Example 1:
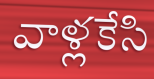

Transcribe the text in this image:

వాళ్లకేసి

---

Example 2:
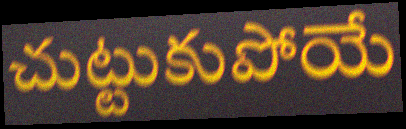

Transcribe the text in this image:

చుట్టుకుపోయే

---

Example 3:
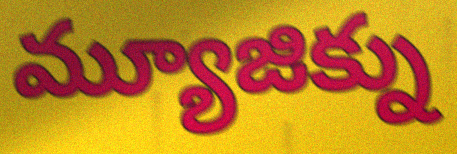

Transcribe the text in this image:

మ్యూజిక్ను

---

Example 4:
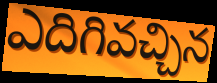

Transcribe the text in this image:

ఎదిగివచ్చిన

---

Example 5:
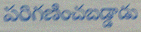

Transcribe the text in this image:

పరిగణించబడ్డాడు